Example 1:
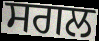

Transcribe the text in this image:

ਸਗਲ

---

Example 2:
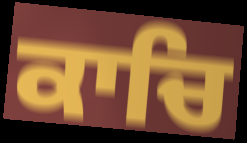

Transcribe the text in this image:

ਕਾਚਿ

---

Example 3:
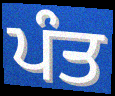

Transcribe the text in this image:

ਪੰਤ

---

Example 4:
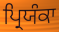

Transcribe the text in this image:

ਪ੍ਰਿਯੰਕਾ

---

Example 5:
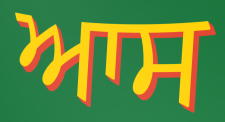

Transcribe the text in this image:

ਆਸ